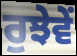
ਰੁਝੇਵੇਂ